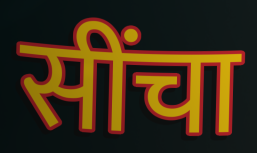
सींचा